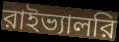
রাইভ্যালরি